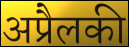
अप्रैलकी